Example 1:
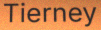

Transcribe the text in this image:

Tierney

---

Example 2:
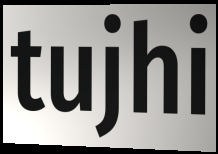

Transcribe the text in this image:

tujhi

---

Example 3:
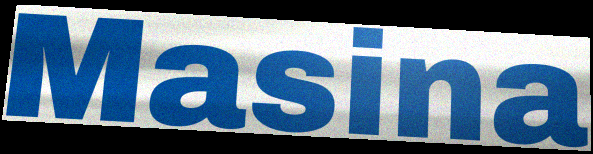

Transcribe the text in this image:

Masina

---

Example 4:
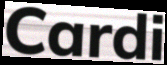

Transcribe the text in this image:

Cardi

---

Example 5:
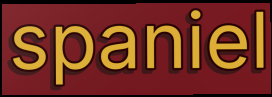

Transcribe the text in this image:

spaniel